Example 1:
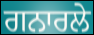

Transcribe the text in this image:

ਗਨਾਰਲੇ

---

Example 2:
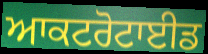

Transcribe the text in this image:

ਆਕਟਰੋਟਾਈਡ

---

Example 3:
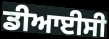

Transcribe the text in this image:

ਡੀਆਈਸੀ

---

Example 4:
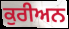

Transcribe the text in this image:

ਕੁਰੀਅਨ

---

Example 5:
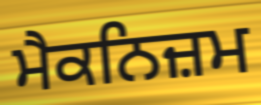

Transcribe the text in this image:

ਮੈਕਨਿਜ਼ਮ